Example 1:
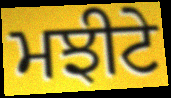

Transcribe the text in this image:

ਮਝੀਟੇ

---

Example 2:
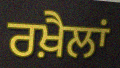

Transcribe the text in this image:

ਰਖ਼ੈਲਾਂ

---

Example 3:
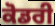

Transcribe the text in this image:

ਕੋਡਰੀ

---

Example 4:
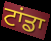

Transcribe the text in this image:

ਟਾਂਡਾ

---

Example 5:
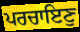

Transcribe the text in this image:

ਪਰਚਾਇਣੁ